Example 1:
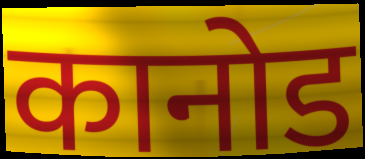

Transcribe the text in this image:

कानोड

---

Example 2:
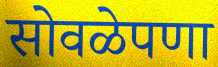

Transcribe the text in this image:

सोवळेपणा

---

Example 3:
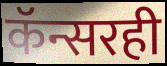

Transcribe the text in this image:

कॅन्सरही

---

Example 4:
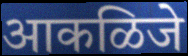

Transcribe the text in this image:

आकळिजे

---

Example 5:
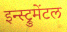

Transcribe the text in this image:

इन्स्ट्रुमेंटल